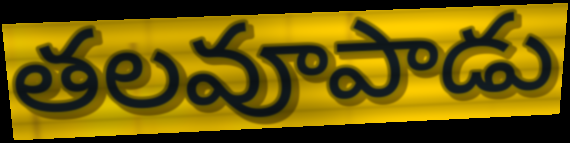
తలవూపాడు